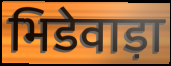
भिडेवाड़ा